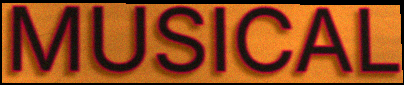
MUSICAL